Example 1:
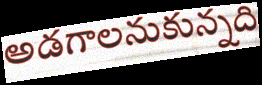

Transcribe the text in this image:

అడగాలనుకున్నది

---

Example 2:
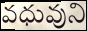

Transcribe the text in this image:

వధువుని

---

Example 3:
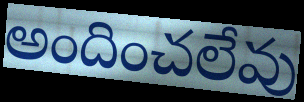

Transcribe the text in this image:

అందించలేవు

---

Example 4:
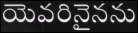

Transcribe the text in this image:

యెవరినైనను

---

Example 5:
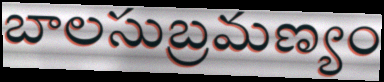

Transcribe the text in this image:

బాలసుబ్రమణ్యం